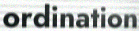
ordination